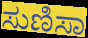
ಸುಣಿಸಾ